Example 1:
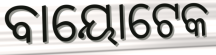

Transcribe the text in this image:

ବାୟୋଟେକ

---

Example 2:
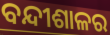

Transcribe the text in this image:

ବନ୍ଦୀଶାଳର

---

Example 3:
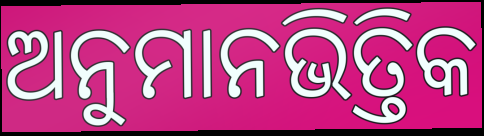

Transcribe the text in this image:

ଅନୁମାନଭିତ୍ତିକ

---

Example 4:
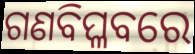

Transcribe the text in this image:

ଗଣବିପ୍ଳବରେ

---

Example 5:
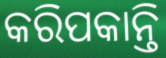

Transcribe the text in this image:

କରିପକାନ୍ତି